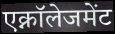
एक्नॉलेजमेंट